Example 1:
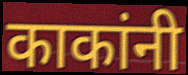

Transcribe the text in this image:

काकांनी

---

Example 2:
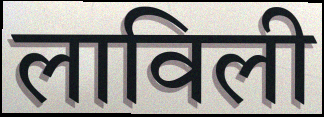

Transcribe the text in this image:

लाविली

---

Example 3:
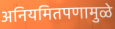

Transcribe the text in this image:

अनियमितपणामुळे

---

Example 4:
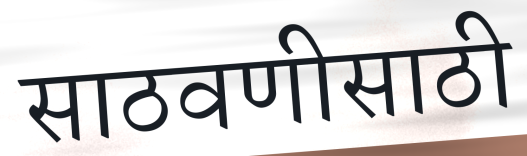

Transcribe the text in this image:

साठवणीसाठी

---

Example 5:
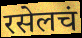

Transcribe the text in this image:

रसेलचं